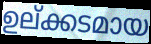
ഉല്ക്കടമായ